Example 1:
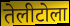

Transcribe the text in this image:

तेलीटोला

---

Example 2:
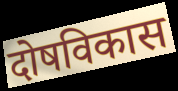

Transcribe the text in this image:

दोषविकास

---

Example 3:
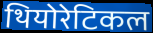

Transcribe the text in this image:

थियोरेटिकल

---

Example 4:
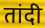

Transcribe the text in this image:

तांदी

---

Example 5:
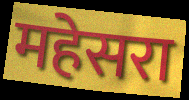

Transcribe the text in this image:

महेसरा